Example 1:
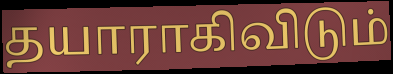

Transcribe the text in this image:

தயாராகிவிடும்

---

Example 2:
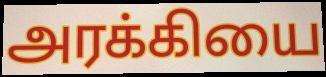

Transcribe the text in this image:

அரக்கியை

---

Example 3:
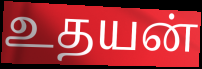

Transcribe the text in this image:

உதயன்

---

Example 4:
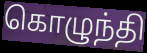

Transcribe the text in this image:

கொழுந்தி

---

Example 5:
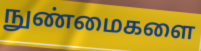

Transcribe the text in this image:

நுண்மைகளை